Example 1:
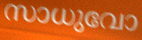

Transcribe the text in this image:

സാധുവോ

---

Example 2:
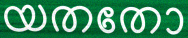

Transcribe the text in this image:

യതതോ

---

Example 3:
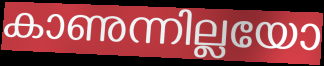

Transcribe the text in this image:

കാണുന്നില്ലയോ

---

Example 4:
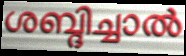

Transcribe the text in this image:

ശബ്ദിച്ചാൽ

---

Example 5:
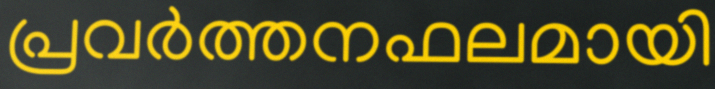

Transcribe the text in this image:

പ്രവർത്തനഫലമായി